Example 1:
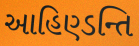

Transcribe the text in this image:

આહિણ્ડન્તિ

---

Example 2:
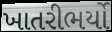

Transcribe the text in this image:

ખાતરીભર્યો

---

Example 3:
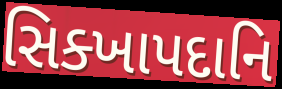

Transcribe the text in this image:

સિક્ખાપદાનિ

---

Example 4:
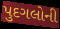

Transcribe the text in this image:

પુદગલોની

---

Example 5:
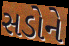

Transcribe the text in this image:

સડોને